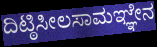
ದಿಟ್ಠಿಸೀಲಸಾಮಞ್ಞೇನ